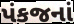
પંકજનાં